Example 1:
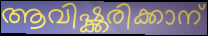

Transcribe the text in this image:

ആവിഷ്ക്കരിക്കാന്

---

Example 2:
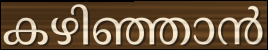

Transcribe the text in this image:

കഴിഞ്ഞാൻ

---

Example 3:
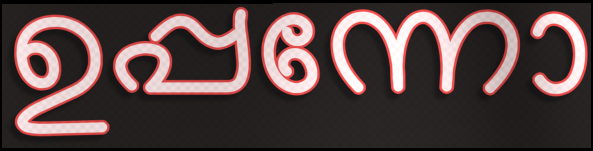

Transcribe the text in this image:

ഉപ്പന്നോ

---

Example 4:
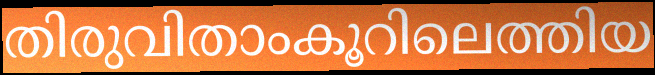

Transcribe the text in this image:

തിരുവിതാംകൂറിലെത്തിയ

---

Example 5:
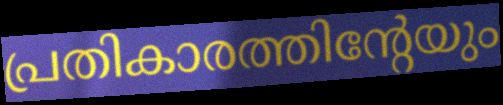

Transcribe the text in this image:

പ്രതികാരത്തിന്റേയും